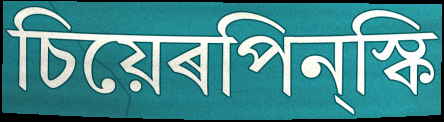
চিয়েৰপিন্‌স্কি